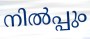
നിൽപ്പും